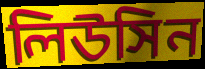
লিউসিন